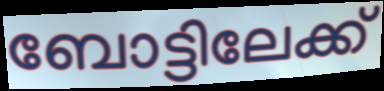
ബോട്ടിലേക്ക്